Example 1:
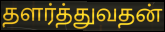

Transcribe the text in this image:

தளர்த்துவதன்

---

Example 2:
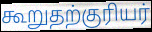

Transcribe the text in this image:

கூறுதற்குரியர்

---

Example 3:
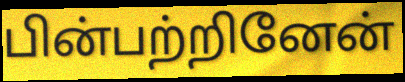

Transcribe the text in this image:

பின்பற்றினேன்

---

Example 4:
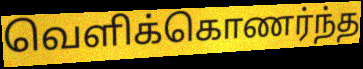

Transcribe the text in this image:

வெளிக்கொணர்ந்த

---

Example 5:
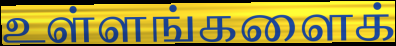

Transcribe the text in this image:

உள்ளங்களைக்